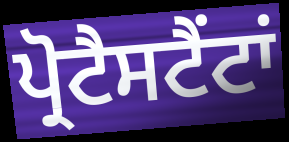
ਪ੍ਰੋਟੈਸਟੈਂਟਾਂ